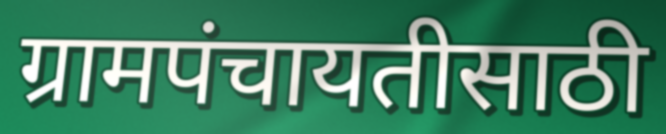
ग्रामपंचायतीसाठी